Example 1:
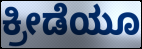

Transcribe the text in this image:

ಕ್ರೀಡೆಯೂ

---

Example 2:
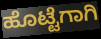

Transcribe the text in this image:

ಹೊಟ್ಟೆಗಾಗಿ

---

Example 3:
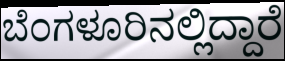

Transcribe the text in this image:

ಬೆಂಗಳೂರಿನಲ್ಲಿದ್ದಾರೆ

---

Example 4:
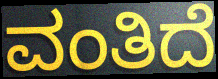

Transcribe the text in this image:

ವಂತಿದೆ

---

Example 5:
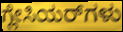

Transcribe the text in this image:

ಗ್ಲೇಸಿಯರ್‌ಗಳು